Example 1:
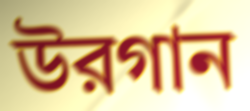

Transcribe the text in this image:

উরগান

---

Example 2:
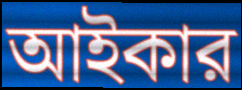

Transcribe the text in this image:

আইকার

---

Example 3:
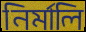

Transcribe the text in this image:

নির্মালি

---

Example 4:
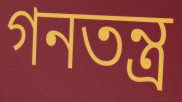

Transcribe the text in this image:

গনতন্ত্র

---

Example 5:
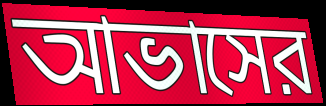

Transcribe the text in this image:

আভাসের